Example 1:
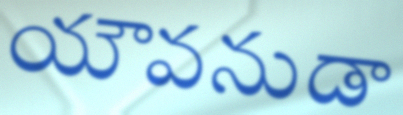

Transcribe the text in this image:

యౌవనుడా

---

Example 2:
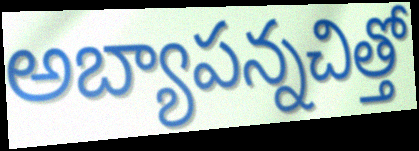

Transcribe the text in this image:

అబ్యాపన్నచిత్తో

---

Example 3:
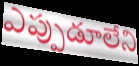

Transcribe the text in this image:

ఎప్పుడూలేని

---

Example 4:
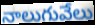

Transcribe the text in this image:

నాలుగువేలు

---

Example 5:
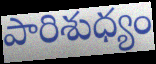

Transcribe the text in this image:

పారిశుధ్యం